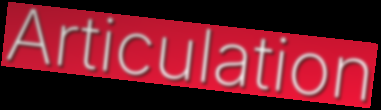
Articulation